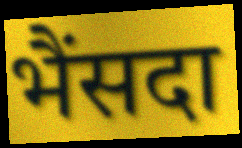
भैंसदा